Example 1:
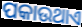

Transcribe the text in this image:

ପକାଉଥାଏ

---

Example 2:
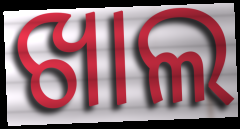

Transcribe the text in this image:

ଖାଲ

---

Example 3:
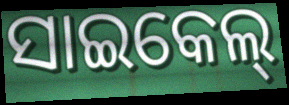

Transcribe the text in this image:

ସାଇକେଲ୍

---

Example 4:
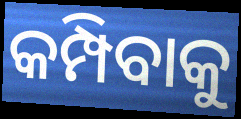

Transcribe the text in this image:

କମ୍ପିବାକୁ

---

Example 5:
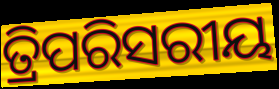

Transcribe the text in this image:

ତ୍ରିପରିସରୀୟ